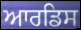
ਆਰਡਿਸ